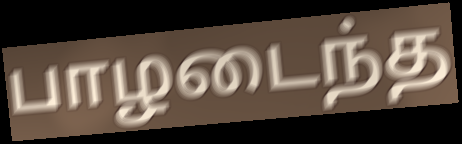
பாழடைந்த